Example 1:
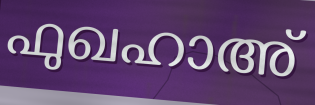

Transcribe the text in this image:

ഫുഖഹാഅ്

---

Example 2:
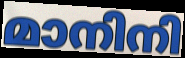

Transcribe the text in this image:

മാനിനി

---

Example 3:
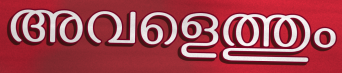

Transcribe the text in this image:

അവളെത്തും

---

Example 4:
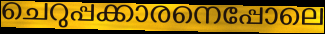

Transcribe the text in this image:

ചെറുപ്പക്കാരനെപ്പോലെ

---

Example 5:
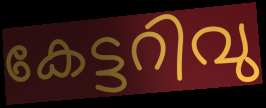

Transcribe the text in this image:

കേട്ടറിവു